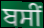
ਬਸੀਂ